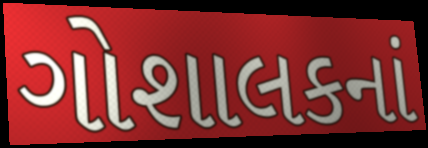
ગોશાલકનાં